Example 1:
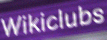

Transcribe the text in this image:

Wikiclubs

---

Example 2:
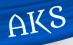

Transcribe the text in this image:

AKS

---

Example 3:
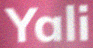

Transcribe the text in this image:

Yali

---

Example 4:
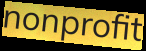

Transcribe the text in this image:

nonprofit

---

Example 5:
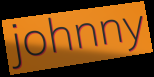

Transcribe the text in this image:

johnny